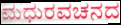
ಮಧುರವಚನದ